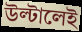
উল্টালেই